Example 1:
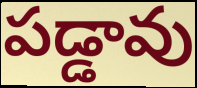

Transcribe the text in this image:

పడ్డావు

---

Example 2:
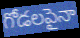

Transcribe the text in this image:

గోడలపైనా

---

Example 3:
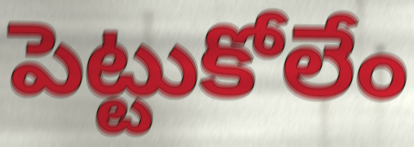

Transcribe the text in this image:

పెట్టుకోలేం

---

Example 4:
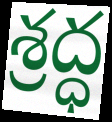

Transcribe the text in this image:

శ్రద్ధ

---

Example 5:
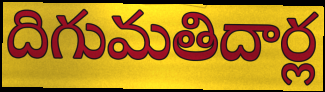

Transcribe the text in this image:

దిగుమతిదార్ల